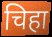
चिहा